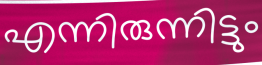
എന്നിരുന്നിട്ടും